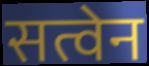
सत्वेन